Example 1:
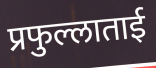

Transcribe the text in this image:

प्रफुल्लाताई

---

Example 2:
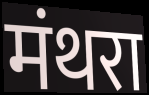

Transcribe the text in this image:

मंथरा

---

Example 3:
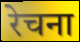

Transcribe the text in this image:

रेचना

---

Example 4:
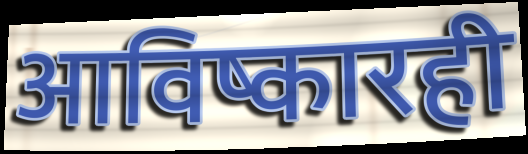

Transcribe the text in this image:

आविष्कारही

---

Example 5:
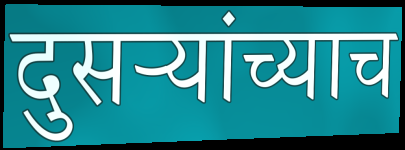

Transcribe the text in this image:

दुसऱ्यांच्याच